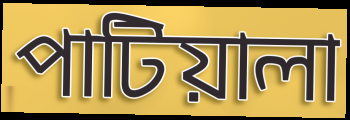
পাটিয়ালা